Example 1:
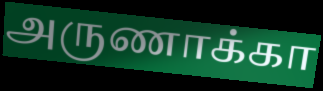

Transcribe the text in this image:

அருணாக்கா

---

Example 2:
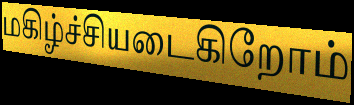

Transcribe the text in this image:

மகிழ்ச்சியடைகிறோம்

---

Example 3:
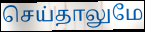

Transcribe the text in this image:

செய்தாலுமே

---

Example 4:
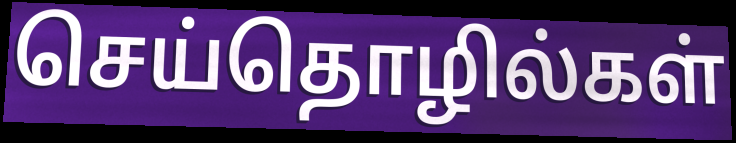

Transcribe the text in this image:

செய்தொழில்கள்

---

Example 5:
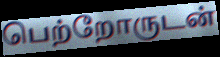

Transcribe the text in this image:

பெற்றோருடன்